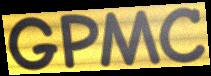
GPMC